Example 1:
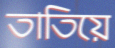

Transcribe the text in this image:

তাতিয়ে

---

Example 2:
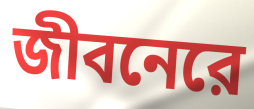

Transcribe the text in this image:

জীবনেরে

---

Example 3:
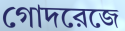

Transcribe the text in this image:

গোদরেজে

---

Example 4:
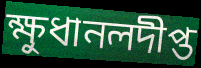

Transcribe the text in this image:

ক্ষুধানলদীপ্ত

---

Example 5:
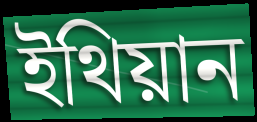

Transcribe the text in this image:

ইথিয়ান